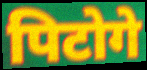
पिटोगे